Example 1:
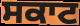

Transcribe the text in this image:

ਸਕਾਟ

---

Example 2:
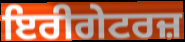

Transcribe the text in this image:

ਇਰੀਗੇਟਰਜ਼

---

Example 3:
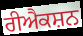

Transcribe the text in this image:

ਰੀਐਕਸ਼ਨ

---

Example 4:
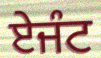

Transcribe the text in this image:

ਏਜੰਟ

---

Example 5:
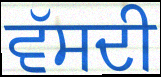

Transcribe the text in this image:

ਵੱਸਦੀ